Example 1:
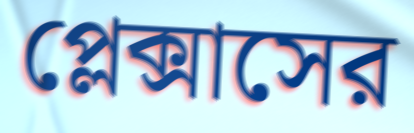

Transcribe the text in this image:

প্লেক্সাসের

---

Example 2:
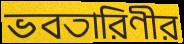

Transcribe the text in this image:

ভবতারিণীর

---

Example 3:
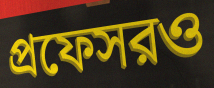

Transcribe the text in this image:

প্রফেসরও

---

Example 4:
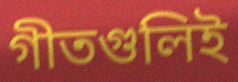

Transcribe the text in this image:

গীতগুলিই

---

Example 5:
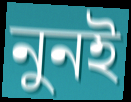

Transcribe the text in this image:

নুনই